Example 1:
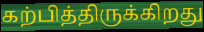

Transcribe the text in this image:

கற்பித்திருக்கிறது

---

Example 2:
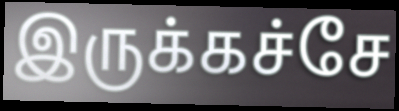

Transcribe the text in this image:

இருக்கச்சே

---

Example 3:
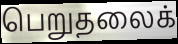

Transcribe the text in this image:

பெறுதலைக்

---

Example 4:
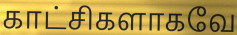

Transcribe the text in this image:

காட்சிகளாகவே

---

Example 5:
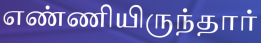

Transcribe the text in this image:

எண்ணியிருந்தார்